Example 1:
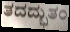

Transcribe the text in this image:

ತದದ್ಭುತಂ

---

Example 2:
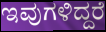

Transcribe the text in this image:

ಇವುಗಳಿದ್ದರೆ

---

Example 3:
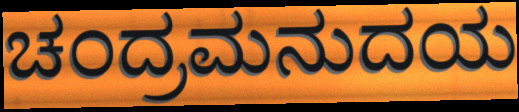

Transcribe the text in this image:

ಚಂದ್ರಮನುದಯ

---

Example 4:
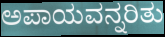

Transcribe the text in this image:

ಅಪಾಯವನ್ನರಿತು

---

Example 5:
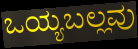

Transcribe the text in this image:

ಒಯ್ಯಬಲ್ಲವು